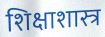
शिक्षाशास्त्र